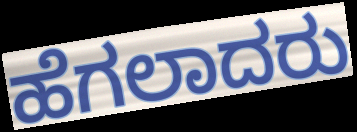
ಹೆಗಲಾದರು